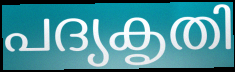
പദ്യകൃതി